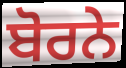
ਬੋਰਨੇ